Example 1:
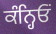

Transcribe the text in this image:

ਕੰਨ੍ਹਿਓਂ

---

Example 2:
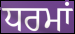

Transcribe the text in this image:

ਧਰਮਾਂ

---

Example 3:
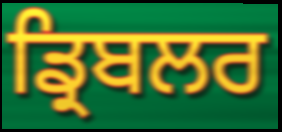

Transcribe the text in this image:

ਡ੍ਰਿਬਲਰ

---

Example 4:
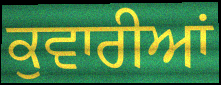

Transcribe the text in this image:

ਕੁਵਾਰੀਆਂ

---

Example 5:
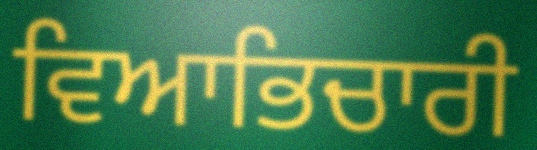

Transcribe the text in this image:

ਵਿਆਭਿਚਾਰੀ